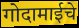
गोदामाईचे